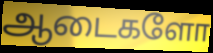
ஆடைகளோ